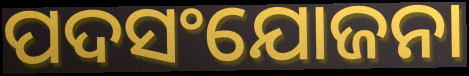
ପଦସଂଯୋଜନା